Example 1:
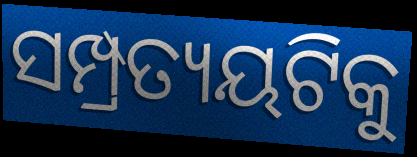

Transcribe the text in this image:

ସମ୍ପ୍ରତ୍ୟୟଟିକୁ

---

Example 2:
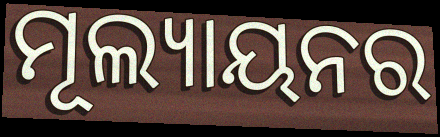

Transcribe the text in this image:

ମୂଲ୍ୟାୟନର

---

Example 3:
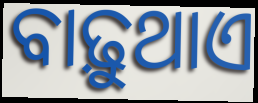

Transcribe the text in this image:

ବାଢ଼ୁଥାଏ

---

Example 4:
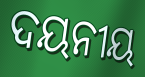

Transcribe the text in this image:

ଦୟନୀୟ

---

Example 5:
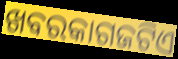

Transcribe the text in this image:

ଖବରକାଗଜଟିଏ